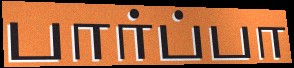
பார்ப்பா